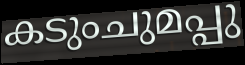
കടുംചുമപ്പു